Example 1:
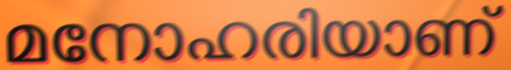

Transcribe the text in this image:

മനോഹരിയാണ്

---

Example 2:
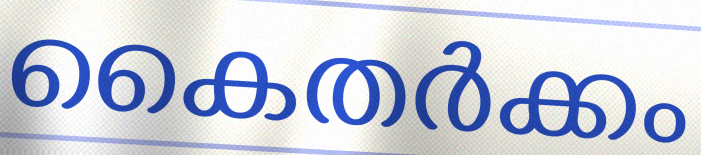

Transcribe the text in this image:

കൈതർക്കം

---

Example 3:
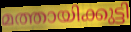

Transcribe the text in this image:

മത്തായിക്കുട്ടി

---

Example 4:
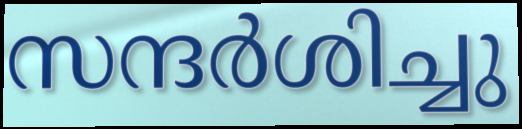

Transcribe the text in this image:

സന്ദർശിച്ചു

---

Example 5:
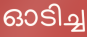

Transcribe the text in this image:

ഓടിച്ച